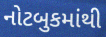
નોટબુકમાંથી